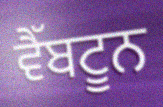
ਵੈੱਬਟੂਨ